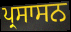
ਪ੍ਰਸਾਸਨ